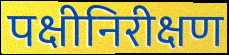
पक्षीनिरीक्षण